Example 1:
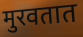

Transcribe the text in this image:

मुरवतात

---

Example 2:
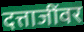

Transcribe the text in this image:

दत्ताजींवर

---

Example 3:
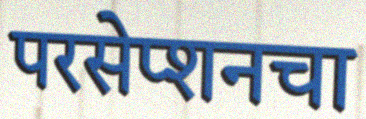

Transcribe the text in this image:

परसेप्शनचा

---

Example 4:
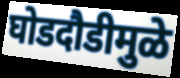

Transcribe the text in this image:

घोडदौडीमुळे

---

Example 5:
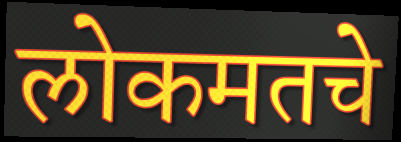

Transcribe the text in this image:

लोकमतचे